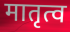
मातृत्व